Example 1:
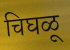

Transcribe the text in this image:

चिघळू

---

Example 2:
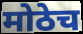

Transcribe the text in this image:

मोठेच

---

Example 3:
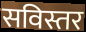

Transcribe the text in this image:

सविस्तर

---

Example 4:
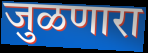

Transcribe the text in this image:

जुळणारा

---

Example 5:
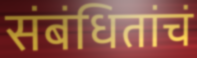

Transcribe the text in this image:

संबंधितांचं